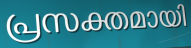
പ്രസക്തമായി